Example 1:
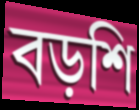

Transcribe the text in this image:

বড়শি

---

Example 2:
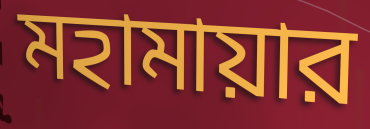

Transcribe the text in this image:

মহামায়ার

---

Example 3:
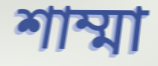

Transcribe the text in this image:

শাম্মা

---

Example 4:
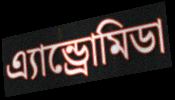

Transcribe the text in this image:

এ্যান্ড্রোমিডা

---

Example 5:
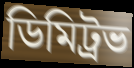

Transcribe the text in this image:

ডিমিট্রভ